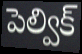
పెల్విక్